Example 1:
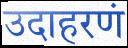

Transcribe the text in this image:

उदाहरणं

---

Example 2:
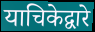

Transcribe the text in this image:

याचिकेद्वारे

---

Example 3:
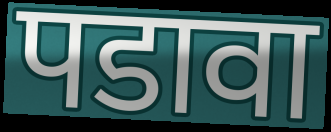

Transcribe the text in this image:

पडावा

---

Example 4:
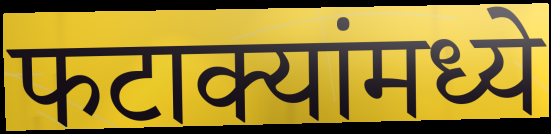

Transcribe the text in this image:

फटाक्यांमध्ये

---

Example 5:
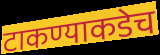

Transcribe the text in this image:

टाकण्याकडेच